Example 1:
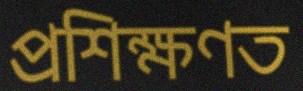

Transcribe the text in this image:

প্ৰশিক্ষণত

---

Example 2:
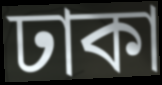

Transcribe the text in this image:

ঢাকা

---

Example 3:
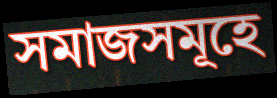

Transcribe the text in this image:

সমাজসমূহে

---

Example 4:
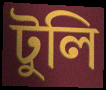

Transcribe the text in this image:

টুলি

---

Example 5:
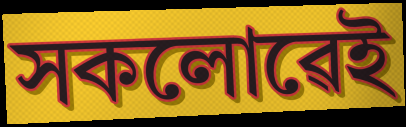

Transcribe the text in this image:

সকলোৱেই